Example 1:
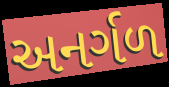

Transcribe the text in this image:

અનર્ગળ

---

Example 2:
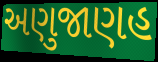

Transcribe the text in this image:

અણુજાણહ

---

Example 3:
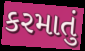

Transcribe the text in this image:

કરમાતું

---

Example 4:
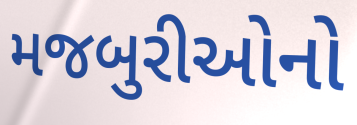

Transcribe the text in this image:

મજબુરીઓનો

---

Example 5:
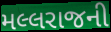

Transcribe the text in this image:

મલ્લરાજની